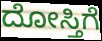
ದೋಸ್ತಿಗೆ